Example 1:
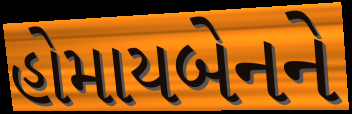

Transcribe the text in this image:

હોમાયબેનને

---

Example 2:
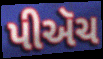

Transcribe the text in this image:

પીઍચ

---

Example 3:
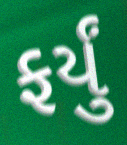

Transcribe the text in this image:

ફર્યું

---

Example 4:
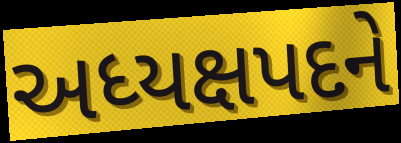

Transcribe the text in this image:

અધ્યક્ષપદને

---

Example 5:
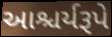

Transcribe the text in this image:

આશ્ચર્યરૂપે